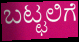
ಬಟ್ಟಲಿಗೆ